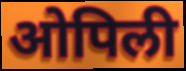
ओपिली